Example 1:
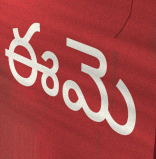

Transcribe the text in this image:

ఈమె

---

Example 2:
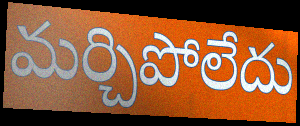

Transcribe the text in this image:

మర్చిపోలేదు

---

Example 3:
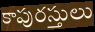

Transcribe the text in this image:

కాపురస్తులు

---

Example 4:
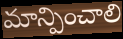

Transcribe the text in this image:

మాన్పించాలి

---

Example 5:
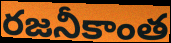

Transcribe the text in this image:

రజనీకాంత